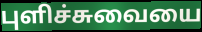
புளிச்சுவையை